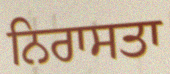
ਨਿਰਾਸਤਾ